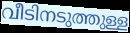
വീടിനടുത്തുള്ള